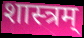
शास्त्रम्